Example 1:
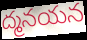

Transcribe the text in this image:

ద్మనయన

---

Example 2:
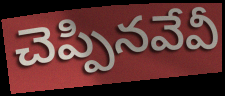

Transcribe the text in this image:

చెప్పినవేవీ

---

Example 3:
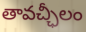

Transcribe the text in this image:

తావచ్ఛీలం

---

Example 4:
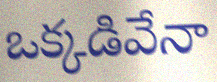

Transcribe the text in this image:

ఒక్కడివేనా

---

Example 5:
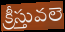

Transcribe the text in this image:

క్రీస్తువలె